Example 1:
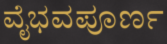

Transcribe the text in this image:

ವೈಭವಪೂರ್ಣ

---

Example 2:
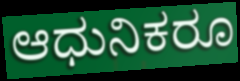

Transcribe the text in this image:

ಆಧುನಿಕರೂ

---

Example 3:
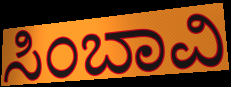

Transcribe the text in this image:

ಸಿಂಬಾವಿ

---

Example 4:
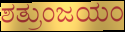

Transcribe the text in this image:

ಶತ್ರುಂಜಯಂ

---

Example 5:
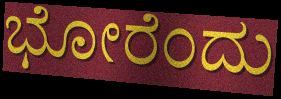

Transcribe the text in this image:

ಭೋರೆಂದು